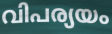
വിപര്യയം